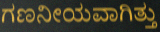
ಗಣನೀಯವಾಗಿತ್ತು